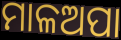
ମାଳଅପା